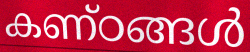
കണ്ഠങ്ങൾ